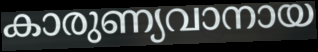
കാരുണ്യവാനായ